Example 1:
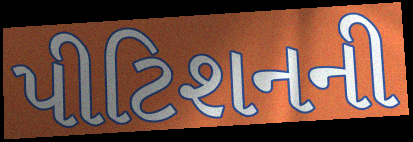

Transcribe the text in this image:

પીટિશનની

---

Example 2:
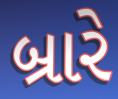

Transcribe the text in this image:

બ્રારે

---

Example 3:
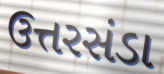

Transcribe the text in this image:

ઉત્તરસંડા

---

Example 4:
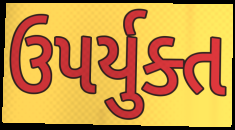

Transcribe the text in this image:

ઉપર્યુક્ત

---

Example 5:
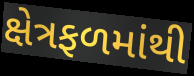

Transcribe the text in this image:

ક્ષેત્રફળમાંથી